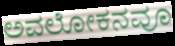
ಅವಲೋಕನವೂ